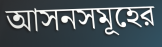
আসনসমূহের